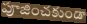
పూజించకుండా